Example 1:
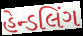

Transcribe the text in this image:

હેન્ડલિંગ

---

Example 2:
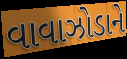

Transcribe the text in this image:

વાવાઝોડાને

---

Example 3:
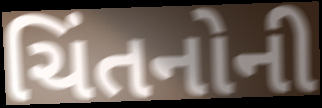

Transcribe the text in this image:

ચિંતનોની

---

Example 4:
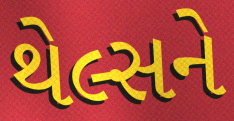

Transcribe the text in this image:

થેલ્સને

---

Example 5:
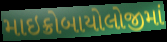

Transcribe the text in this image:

માઇક્રોબાયોલોજીમાં